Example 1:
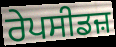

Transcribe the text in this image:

ਰੇਪਸੀਡਜ਼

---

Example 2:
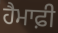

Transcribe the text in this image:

ਹੈਮਾਫ਼ੀ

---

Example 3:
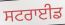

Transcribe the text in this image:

ਸਟਰਾਈਡ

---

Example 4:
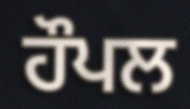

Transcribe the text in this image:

ਹੌਪਲ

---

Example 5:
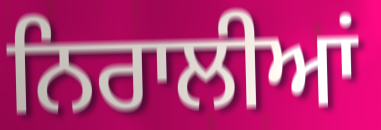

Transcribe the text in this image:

ਨਿਰਾਲੀਆਂ